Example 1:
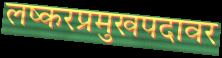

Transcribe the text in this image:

लष्करप्रमुखपदावर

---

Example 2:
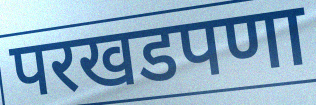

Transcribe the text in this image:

परखडपणा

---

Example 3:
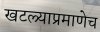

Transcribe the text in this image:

खटल्याप्रमाणेच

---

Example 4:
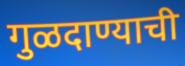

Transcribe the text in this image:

गुळदाण्याची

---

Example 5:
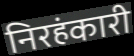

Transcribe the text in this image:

निरहंकारी